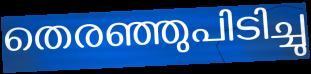
തെരഞ്ഞുപിടിച്ചു